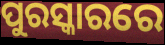
ପୁରସ୍କାରରେ